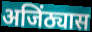
अजिंठ्यास